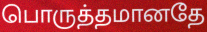
பொருத்தமானதே